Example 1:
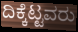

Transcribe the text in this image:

ದಿಕ್ಕೆಟ್ಟವರು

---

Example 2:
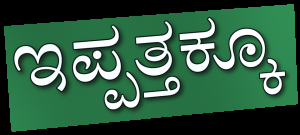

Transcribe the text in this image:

ಇಪ್ಪತ್ತಕ್ಕೂ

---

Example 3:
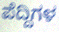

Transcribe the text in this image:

ಪೆದ್ದಿಗಳ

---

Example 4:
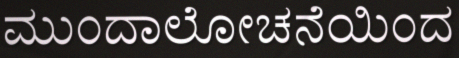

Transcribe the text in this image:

ಮುಂದಾಲೋಚನೆಯಿಂದ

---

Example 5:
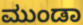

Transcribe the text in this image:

ಮುಂಡಾ